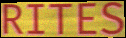
RITES